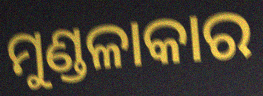
ମୁଣ୍ଡଳାକାର